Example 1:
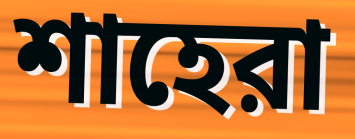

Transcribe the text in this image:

শাহেরা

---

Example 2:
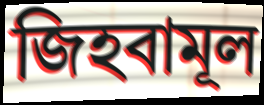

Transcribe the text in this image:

জিহবামূল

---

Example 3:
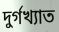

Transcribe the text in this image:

দুর্গখ্যাত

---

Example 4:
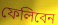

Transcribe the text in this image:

ফেলিবেন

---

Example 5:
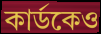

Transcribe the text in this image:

কার্ডকেও